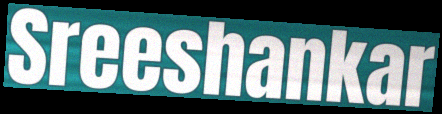
Sreeshankar